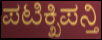
ಪಟಿಕ್ಖಿಪನ್ತಿ